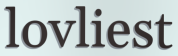
lovliest